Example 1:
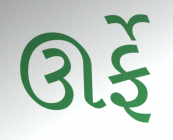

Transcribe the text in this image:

ઊર્ફે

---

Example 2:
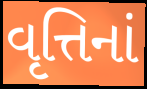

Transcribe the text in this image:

વૃત્તિનાં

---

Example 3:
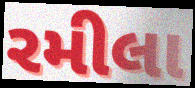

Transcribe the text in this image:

રમીલા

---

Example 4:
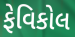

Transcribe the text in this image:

ફેવિકોલ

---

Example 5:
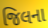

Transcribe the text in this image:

જિલના